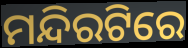
ମନ୍ଦିରଟିରେ